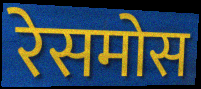
रेसमोस